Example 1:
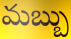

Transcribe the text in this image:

మబ్బు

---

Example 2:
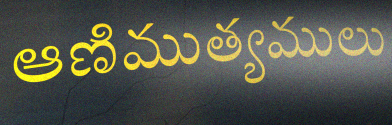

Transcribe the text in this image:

ఆణిముత్యములు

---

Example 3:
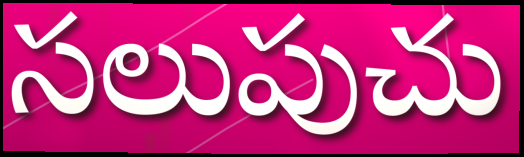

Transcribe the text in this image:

సలుపుచు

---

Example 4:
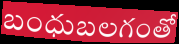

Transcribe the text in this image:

బంధుబలగంతో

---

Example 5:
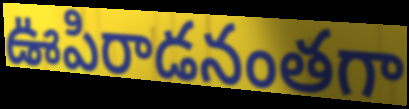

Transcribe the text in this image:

ఊపిరాడనంతగా